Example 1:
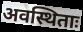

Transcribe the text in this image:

अवस्थिताः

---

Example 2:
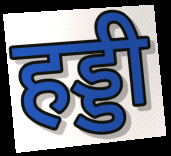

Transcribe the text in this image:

हड्डी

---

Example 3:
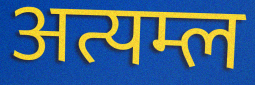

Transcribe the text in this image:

अत्यम्ल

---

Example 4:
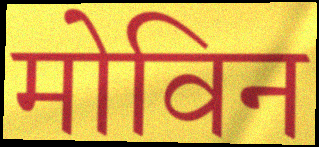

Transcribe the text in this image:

मोविन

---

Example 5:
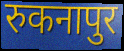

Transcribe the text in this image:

रुकनापुर